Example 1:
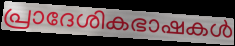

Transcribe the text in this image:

പ്രാദേശികഭാഷകൾ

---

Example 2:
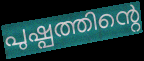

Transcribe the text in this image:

പുഷ്പത്തിന്റെ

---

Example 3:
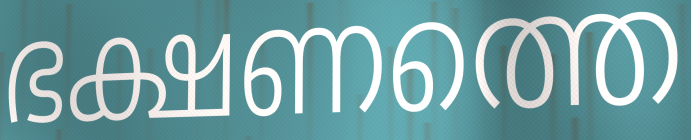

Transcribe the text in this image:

ഭക്ഷണത്തെ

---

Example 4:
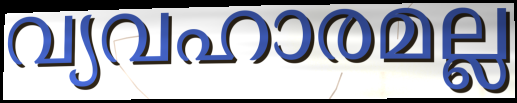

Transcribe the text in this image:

വ്യവഹാരമല്ല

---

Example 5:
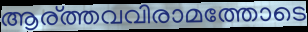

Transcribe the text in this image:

ആര്ത്തവവിരാമത്തോടെ